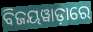
ବିଜୟୱାଡ଼ାରେ